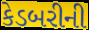
કેડબરીની